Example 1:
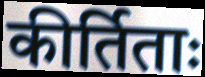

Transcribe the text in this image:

कीर्तिताः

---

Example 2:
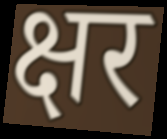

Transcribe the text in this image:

क्षर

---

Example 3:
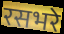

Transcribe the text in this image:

रसभरे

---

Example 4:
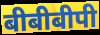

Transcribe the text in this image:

बीबीबीपी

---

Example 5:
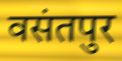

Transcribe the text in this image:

वसंतपुर